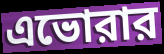
এভোরার